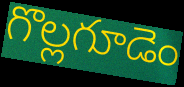
గొల్లగూడెం